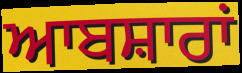
ਆਬਸ਼ਾਰਾਂ